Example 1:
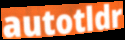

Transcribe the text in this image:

autotldr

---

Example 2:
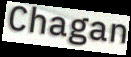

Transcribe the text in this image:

Chagan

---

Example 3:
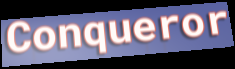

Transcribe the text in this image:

Conqueror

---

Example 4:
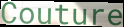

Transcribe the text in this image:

Couture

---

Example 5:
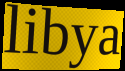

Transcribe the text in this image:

libya